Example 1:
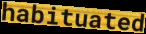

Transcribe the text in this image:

habituated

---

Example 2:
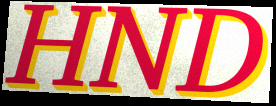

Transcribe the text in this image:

HND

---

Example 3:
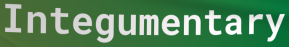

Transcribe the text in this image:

Integumentary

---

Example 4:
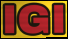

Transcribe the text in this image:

IGI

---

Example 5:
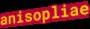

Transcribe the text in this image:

anisopliae